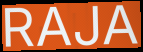
RAJA